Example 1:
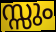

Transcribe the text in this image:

സ്സും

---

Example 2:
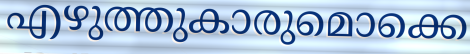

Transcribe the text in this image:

എഴുത്തുകാരുമൊക്കെ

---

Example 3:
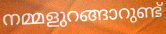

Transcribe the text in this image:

നമ്മളുറങ്ങാറുണ്ട്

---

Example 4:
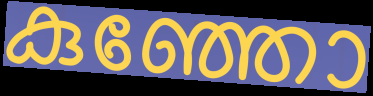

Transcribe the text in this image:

കുഞ്ഞോ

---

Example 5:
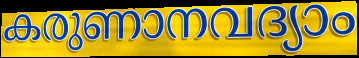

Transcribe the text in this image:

കരുണാനവദ്യാം